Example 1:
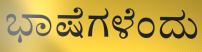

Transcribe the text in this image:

ಭಾಷೆಗಳೆಂದು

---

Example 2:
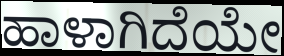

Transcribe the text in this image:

ಹಾಳಾಗಿದೆಯೇ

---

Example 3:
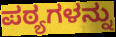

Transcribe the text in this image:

ಪಠ್ಯಗಳನ್ನು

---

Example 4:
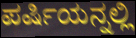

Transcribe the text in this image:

ಪರ್ಷಿಯನ್ನಲ್ಲಿ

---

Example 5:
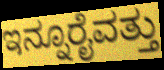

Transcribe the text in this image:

ಇನ್ನೂರೈವತ್ತು